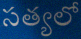
సత్యలో